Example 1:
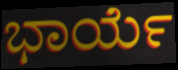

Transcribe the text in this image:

ಭಾರ್ಯೆ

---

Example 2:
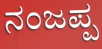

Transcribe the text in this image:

ನಂಜಪ್ಪ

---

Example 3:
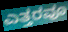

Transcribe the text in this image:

ಎತ್ತರವೂ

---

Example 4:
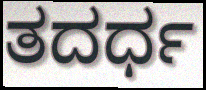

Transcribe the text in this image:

ತದರ್ಧ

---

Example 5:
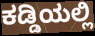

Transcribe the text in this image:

ಕಡ್ಡಿಯಲ್ಲಿ